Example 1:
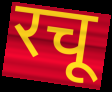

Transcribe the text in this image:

रचू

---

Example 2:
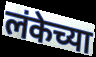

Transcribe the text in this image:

लंकेच्या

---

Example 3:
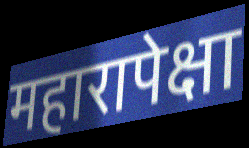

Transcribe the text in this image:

महारापेक्षा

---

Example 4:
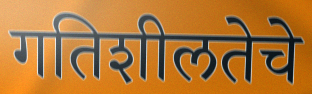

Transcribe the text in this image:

गतिशीलतेचे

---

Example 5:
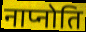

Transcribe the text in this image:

नाप्नोति